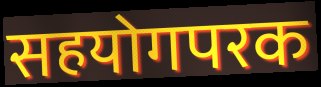
सहयोगपरक